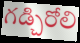
గడ్చిరోలి